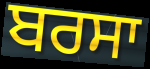
ਬਰਸਾ